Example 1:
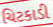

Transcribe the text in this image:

ચિટકાડી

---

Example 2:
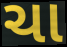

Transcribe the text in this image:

ચા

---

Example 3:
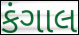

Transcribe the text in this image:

કંગાલ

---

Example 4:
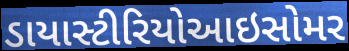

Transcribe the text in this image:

ડાયાસ્ટીરિયોઆઇસોમર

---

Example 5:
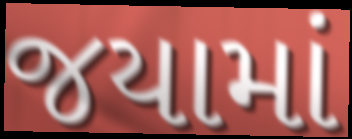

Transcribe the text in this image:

જયામાં